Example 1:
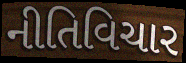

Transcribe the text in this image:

નીતિવિચાર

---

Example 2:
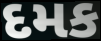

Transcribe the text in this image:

દમક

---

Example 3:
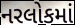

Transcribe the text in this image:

નરલોકમાં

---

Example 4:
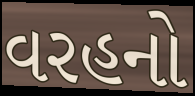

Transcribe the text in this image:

વરહનો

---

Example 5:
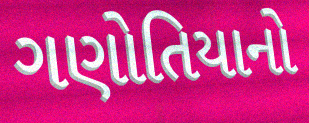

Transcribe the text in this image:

ગણોતિયાનો